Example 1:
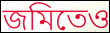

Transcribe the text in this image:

জমিতেও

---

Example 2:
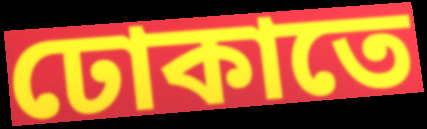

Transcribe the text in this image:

ঢোকাতে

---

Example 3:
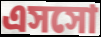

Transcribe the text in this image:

এসসো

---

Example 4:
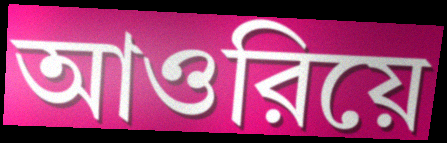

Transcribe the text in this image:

আওরিয়ে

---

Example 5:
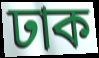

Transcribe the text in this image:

ঢাক